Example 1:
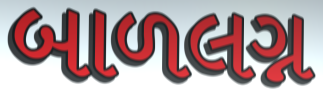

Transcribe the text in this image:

બાળલગ્ન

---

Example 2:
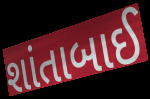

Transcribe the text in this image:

શાંતાબાઈ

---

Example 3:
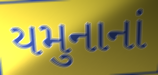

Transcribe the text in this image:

યમુનાનાં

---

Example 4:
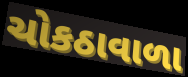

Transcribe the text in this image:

ચોકઠાવાળા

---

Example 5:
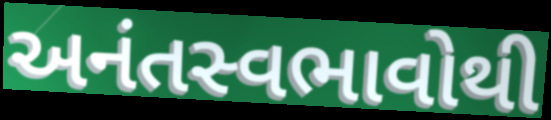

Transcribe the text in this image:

અનંતસ્વભાવોથી